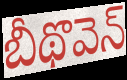
బీథొవెన్